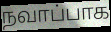
நவாப்பாக